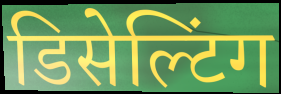
डिसेल्टिंग